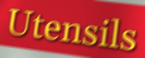
Utensils